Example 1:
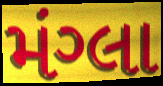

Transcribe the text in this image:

મંગ્લા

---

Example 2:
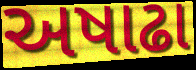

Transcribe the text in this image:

અષાઢા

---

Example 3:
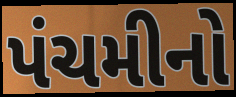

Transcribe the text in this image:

પંચમીનો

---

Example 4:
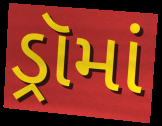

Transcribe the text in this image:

ડ્રૉમાં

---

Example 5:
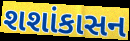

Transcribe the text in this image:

શશાંકાસન